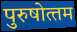
पुरुषोत्‍तम